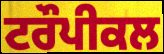
ਟਰੌਪੀਕਲ